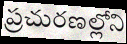
ప్రచురణల్లోని